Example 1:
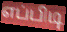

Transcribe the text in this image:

எப்பிடி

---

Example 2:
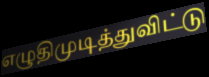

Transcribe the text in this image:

எழுதிமுடித்துவிட்டு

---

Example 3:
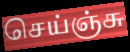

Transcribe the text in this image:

செய்ஞ்சு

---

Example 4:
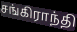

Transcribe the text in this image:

சங்கிராந்தி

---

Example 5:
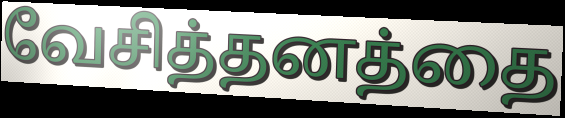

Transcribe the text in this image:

வேசித்தனத்தை